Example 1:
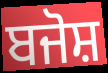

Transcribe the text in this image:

ਬਜੋਸ਼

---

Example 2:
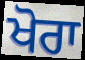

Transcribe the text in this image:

ਖੋਰਾ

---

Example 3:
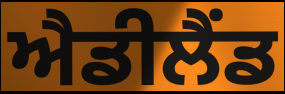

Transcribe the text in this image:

ਐਡੀਲੈਂਡ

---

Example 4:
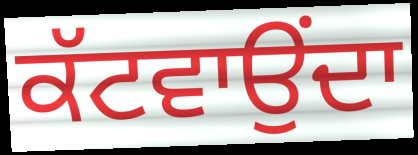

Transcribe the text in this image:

ਕੱਟਵਾਉਂਦਾ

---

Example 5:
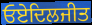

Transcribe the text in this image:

ਓਏਦਿਲਜੀਤ